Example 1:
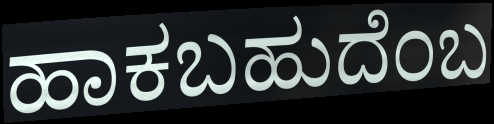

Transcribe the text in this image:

ಹಾಕಬಹುದೆಂಬ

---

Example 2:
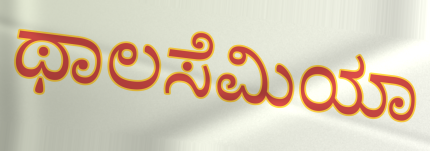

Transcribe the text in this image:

ಥಾಲಸೆಮಿಯಾ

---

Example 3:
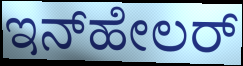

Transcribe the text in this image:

ಇನ್‌ಹೇಲರ್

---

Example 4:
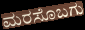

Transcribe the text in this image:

ಮರಸೊಬಗು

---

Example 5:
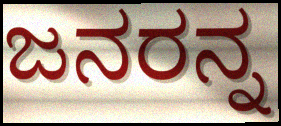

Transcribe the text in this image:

ಜನರನ್ನ